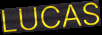
LUCAS